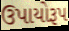
ઉપાયોરૂપ